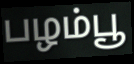
பழம்பூ